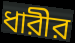
ধারীর